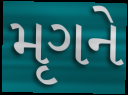
મૃગને